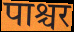
पाश्चर